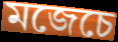
মজেচে